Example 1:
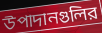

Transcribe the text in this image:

উপাদানগুলির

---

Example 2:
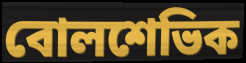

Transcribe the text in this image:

বোলশেভিক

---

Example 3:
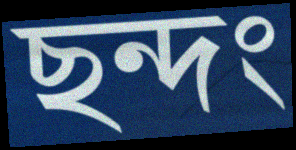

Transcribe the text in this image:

ছন্দং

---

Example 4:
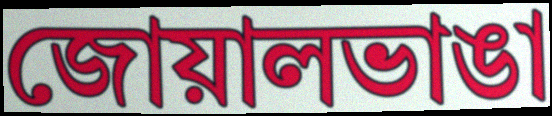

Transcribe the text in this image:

জোয়ালভাঙা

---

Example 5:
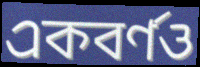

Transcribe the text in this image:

একবর্ণও